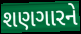
શણગારને